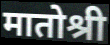
मातोश्री